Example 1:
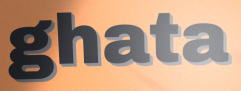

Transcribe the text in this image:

ghata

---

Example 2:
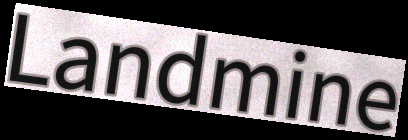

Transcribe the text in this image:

Landmine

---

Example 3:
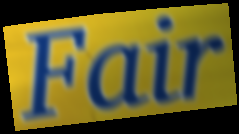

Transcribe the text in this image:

Fair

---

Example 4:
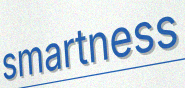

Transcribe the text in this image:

smartness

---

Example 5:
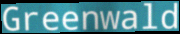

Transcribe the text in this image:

Greenwald